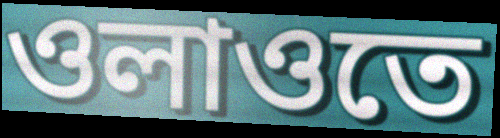
ওলাওতে